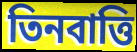
তিনবাত্তি